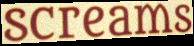
screams